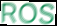
ROS